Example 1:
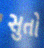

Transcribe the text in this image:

સુતો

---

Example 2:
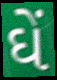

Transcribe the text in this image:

ઘેં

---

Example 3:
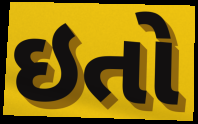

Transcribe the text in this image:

ઇતો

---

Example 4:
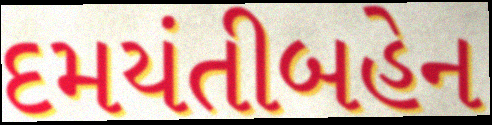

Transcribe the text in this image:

દમયંતીબહેન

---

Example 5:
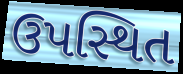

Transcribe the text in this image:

ઉપસ્થિત